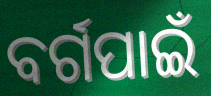
ବର୍ଗପାଇଁ